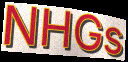
NHGs